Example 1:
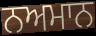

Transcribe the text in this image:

ਨਅਮਾਨ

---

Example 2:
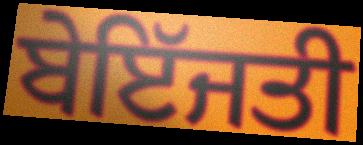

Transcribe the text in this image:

ਬੇਇੱਜਤੀ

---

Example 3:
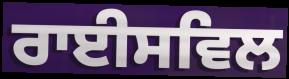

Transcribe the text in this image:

ਰਾਈਸਵਿਲ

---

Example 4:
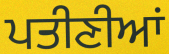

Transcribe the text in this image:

ਪਤੀਣੀਆਂ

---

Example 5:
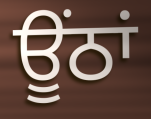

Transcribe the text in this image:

ਊਂਠਾਂ